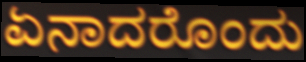
ಏನಾದರೊಂದು